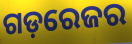
ଗଡ଼ରେଜର